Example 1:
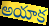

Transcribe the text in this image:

అయాక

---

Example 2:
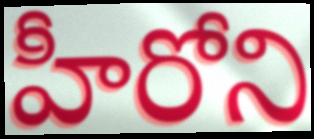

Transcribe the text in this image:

హీరోని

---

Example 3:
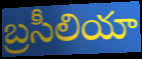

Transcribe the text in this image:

బ్రసీలియా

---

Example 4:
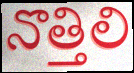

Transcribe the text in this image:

నొత్తిలి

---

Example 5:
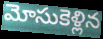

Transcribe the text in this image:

మోసుకెళ్లిన